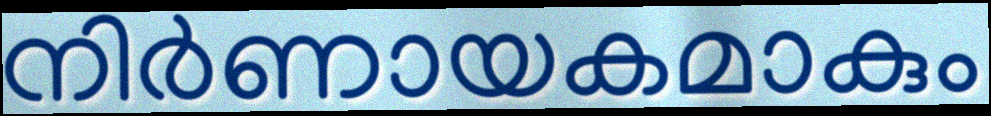
നിർണായകമാകും